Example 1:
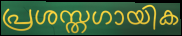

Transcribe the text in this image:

പ്രശസ്തഗായിക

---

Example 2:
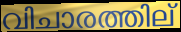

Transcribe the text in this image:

വിചാരത്തില്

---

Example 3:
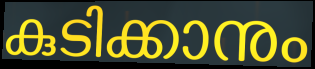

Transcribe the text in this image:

കുടിക്കാനും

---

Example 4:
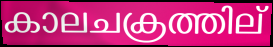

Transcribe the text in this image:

കാലചക്രത്തില്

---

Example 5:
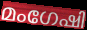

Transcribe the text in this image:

മംഗേഷി